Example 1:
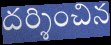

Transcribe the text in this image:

దర్శించిన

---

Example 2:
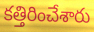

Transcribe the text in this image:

కత్తిరించేశారు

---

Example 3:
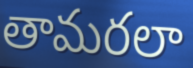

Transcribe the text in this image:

తామరలా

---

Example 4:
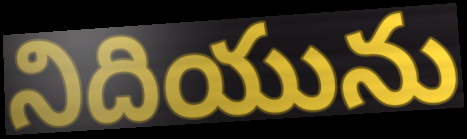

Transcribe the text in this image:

నిదియును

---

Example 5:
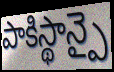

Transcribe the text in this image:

పాకిస్థాన్పై